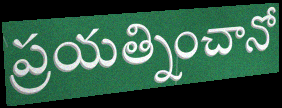
ప్రయత్నించానో